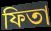
ফিতা